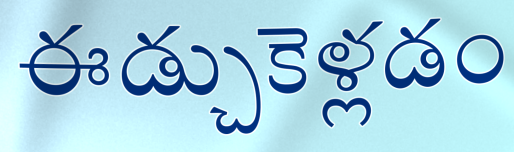
ఈడ్చుకెళ్లడం